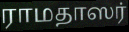
ராமதாஸர்